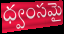
ధ్వంసమై